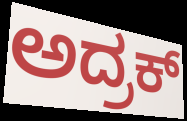
ಅದ್ರಕ್